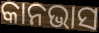
କାନଭାସ